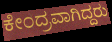
ಕೇಂದ್ರವಾಗಿದ್ದರು